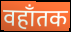
वहाँतक